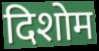
दिशोम